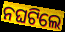
ନଘଟିଲେ